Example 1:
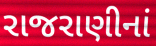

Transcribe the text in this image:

રાજરાણીનાં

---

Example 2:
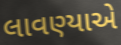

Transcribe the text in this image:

લાવણ્યાએ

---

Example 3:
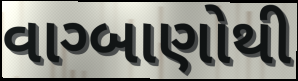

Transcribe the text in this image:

વાગ્બાણોથી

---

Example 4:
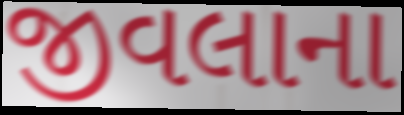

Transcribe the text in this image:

જીવલાના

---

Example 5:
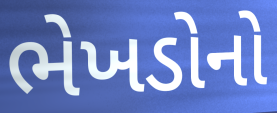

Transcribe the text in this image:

ભેખડોનો